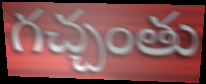
గచ్చంతు